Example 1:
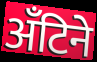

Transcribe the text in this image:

अँटिने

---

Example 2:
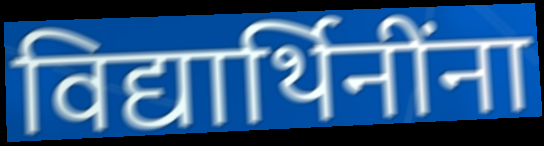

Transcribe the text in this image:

विद्यार्थिनींना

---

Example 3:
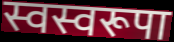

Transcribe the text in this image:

स्वस्वरूपा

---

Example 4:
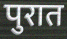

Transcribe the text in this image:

पुरात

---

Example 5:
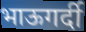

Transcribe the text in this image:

भाऊगर्दी